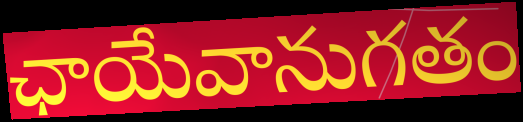
ఛాయేవానుగతం